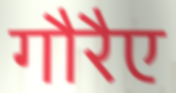
गौरैए